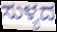
ಸುಳ್ಯದ